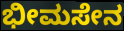
ಭೀಮಸೇನ